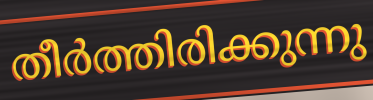
തീർത്തിരിക്കുന്നു